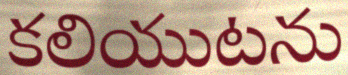
కలియుటను